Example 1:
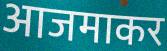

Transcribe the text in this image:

आजमाकर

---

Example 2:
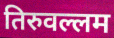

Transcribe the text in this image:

तिरुवल्लम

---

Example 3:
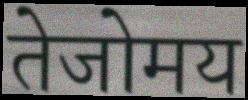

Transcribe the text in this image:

तेजोमय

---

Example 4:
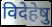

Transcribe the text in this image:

विदेहेषु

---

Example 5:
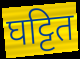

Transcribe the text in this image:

घट्टित